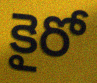
కైరో